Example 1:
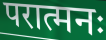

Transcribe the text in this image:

परात्मनः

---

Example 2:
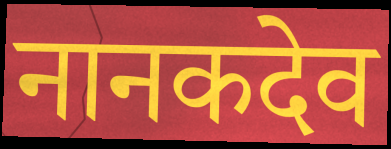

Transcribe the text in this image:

नानकदेव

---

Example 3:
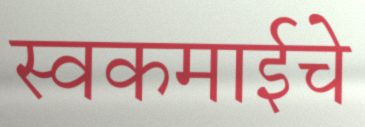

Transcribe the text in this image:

स्वकमाईचे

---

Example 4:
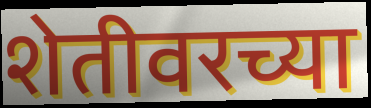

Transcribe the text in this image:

शेतीवरच्या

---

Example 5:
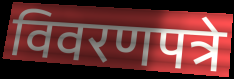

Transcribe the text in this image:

विवरणपत्रे